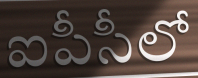
ఐపీసీలో